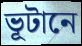
ভূটানে